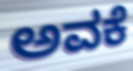
ಅವಕೆ